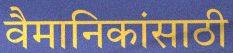
वैमानिकांसाठी